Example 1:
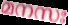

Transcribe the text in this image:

മനസഃ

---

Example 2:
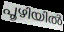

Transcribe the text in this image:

പൂഴിയിൽ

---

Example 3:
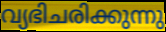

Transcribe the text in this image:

വ്യഭിചരിക്കുന്നു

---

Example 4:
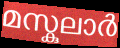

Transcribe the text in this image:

മസ്കുലാർ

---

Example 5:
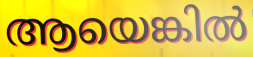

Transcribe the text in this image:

ആയെങ്കിൽ